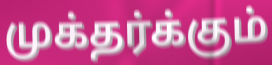
முக்தர்க்கும்